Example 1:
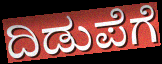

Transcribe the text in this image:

ದಿಡುಪೆಗೆ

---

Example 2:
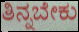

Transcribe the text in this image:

ತಿನ್ನಬೇಕು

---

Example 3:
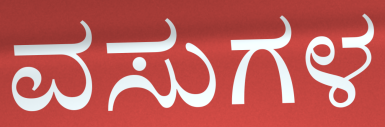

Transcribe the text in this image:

ವಸುಗಳ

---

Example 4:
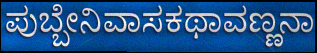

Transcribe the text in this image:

ಪುಬ್ಬೇನಿವಾಸಕಥಾವಣ್ಣನಾ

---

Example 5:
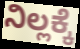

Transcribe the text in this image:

ನಿಲ್ಲಕ್ಕೆ